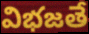
విభజతే